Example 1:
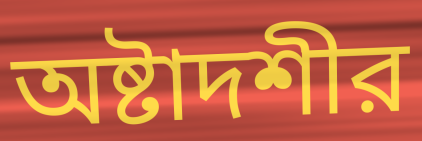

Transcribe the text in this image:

অষ্টাদশীর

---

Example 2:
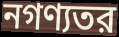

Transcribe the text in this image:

নগণ্যতর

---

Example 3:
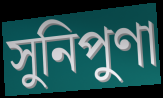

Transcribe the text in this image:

সুনিপুণা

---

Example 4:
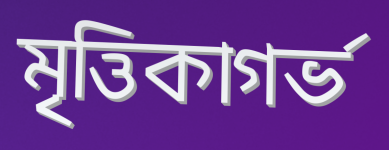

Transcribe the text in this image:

মৃত্তিকাগর্ভ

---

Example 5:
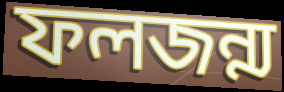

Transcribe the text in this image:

ফলজন্ম